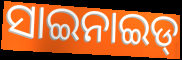
ସାଇନାଇଡ୍